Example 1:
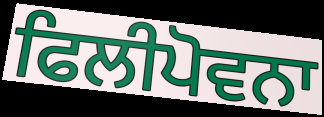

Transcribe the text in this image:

ਫਿਲੀਪੋਵਨਾ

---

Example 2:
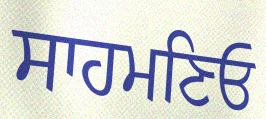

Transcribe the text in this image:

ਸਾਹਮਣਿਓ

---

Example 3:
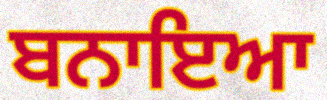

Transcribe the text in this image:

ਬਨਾਇਆ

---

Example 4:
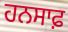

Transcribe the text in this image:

ਹਨਸਾਫ਼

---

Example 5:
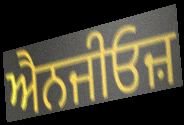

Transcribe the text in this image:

ਐਨਜੀਓਜ਼